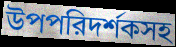
উপপরিদর্শকসহ